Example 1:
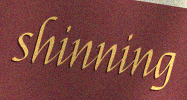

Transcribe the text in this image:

shinning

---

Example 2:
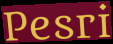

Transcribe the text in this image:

Pesri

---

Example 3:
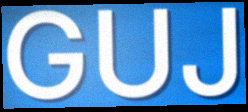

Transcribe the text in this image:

GUJ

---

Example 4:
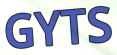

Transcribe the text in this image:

GYTS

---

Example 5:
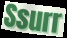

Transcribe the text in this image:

Ssurr